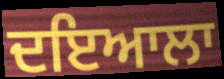
ਦਇਆਲਾ